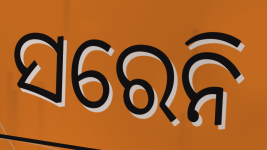
ସରେନି